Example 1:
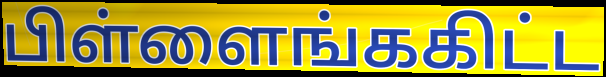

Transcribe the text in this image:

பிள்ளைங்ககிட்ட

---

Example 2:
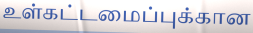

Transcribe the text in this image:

உள்கட்டமைப்புக்கான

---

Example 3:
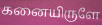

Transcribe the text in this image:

கனையிருளே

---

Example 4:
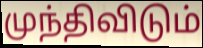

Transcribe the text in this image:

முந்திவிடும்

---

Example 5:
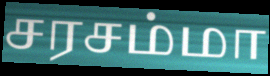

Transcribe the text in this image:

சரசம்மா